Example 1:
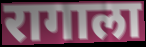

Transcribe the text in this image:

रागाला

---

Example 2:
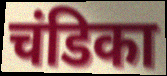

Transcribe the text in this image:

चंडिका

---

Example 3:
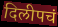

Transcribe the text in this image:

दिलीपचं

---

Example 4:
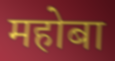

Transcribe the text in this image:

महोबा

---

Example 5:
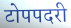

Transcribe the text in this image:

टोपपदरी